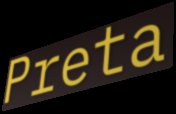
Preta